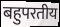
बहुपरतीय